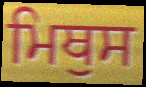
ਮਿਥੁਸ